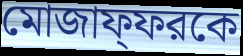
মোজাফ্ফরকে